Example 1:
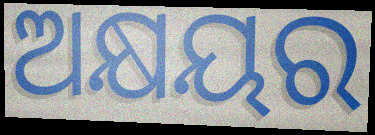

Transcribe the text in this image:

ଅକ୍ଷୟର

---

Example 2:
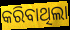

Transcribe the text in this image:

କରିବାଥିଲା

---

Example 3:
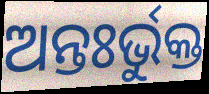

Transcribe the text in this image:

ଅନ୍ତଃର୍ଭୁକ୍ତ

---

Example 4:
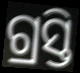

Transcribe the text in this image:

ଗ୍ରସ୍ତି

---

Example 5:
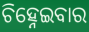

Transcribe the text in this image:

ଚିହ୍ନେଇବାର